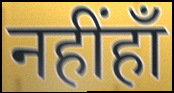
नहींहाँ